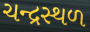
ચન્દ્રસ્થળ